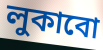
লুকাবো